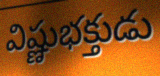
విష్ణుభక్తుడు